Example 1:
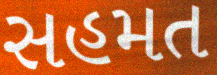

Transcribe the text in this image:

સહમત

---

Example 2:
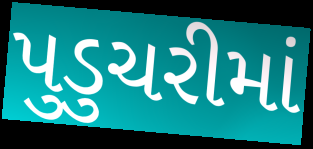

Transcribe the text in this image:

પુડુચરીમાં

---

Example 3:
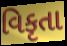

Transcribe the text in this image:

વિકૃતા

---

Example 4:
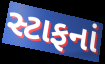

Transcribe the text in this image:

સ્ટાફનાં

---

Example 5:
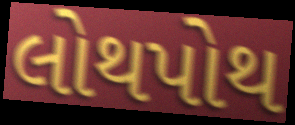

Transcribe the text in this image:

લોથપોથ